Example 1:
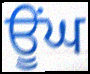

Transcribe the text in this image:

ਊਂਘ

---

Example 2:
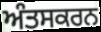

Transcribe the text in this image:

ਅੰਤਸਕਰਨ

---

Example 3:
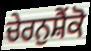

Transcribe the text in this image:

ਚੇਰਨੁਸ਼ੈਂਕੋ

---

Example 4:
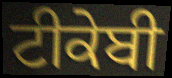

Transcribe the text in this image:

ਟੀਕੇਬੀ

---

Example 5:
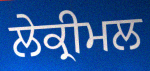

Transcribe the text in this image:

ਲੇਕ੍ਰੀਮਲ